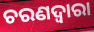
ଚରଣଦ୍ୱାରା